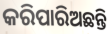
କରିପାରିଅଛନ୍ତି